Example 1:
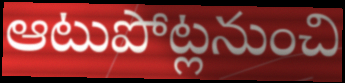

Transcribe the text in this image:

ఆటుపోట్లనుంచి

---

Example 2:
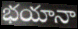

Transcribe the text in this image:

భయానా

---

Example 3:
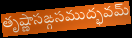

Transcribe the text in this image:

తృష్ణాసఙ్గసముద్భవమ్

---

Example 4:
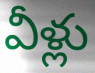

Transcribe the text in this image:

వీళ్లు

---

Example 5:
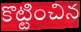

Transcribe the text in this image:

కొట్టించిన